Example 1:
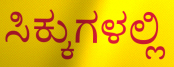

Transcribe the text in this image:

ಸಿಕ್ಕುಗಳಲ್ಲಿ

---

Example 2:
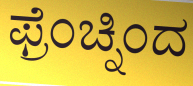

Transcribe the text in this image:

ಫ್ರೆಂಚ್ನಿಂದ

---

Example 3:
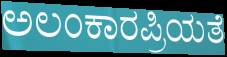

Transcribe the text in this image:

ಅಲಂಕಾರಪ್ರಿಯತೆ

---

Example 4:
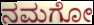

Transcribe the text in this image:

ನಮಗೋ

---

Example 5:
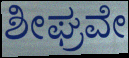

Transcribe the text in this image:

ಶೀಘ್ರವೇ